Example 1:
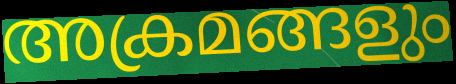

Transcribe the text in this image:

അക്രമങ്ങളും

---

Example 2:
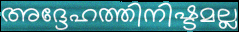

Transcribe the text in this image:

അദ്ദേഹത്തിനിഷ്ടമല്ല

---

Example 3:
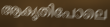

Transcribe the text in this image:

ആകൃതിപോലെ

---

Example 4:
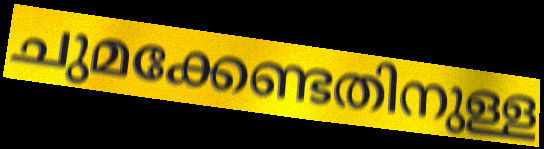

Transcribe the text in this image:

ചുമക്കേണ്ടതിനുള്ള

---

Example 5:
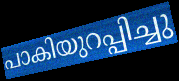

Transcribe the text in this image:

പാകിയുറപ്പിച്ചു